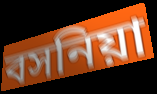
বসনিয়া